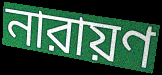
নারায়ণ